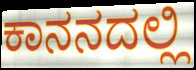
ಕಾನನದಲ್ಲಿ